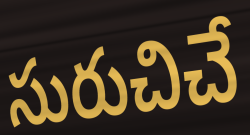
సురుచిచే